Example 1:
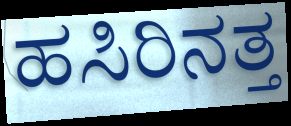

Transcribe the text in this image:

ಹಸಿರಿನತ್ತ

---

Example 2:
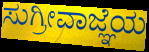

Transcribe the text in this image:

ಸುಗ್ರೀವಾಜ್ಞೆಯ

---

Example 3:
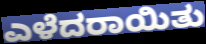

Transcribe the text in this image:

ಎಳೆದರಾಯಿತು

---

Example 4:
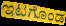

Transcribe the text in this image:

ಇಟಗೊಂಡ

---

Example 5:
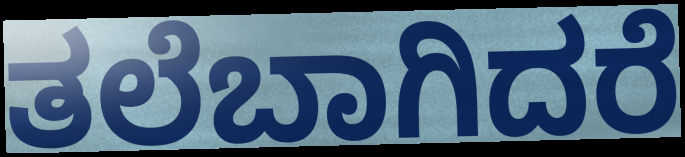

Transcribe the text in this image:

ತಲೆಬಾಗಿದರೆ